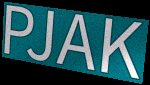
PJAK